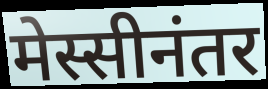
मेस्सीनंतर